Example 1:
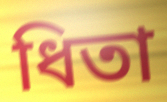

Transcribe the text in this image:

ধিতা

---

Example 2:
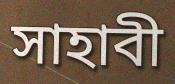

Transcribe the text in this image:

সাহাবী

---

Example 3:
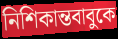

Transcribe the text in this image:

নিশিকান্তবাবুকে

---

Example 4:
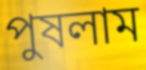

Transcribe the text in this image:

পুষলাম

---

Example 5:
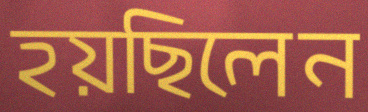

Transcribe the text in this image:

হয়ছিলেন